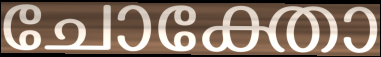
ചോക്തോ